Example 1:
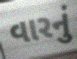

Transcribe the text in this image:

વારનું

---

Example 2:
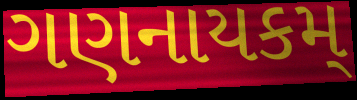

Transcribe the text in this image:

ગણનાયકમ્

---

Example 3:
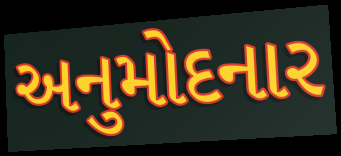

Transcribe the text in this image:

અનુમોદનાર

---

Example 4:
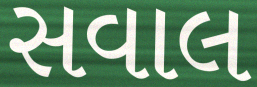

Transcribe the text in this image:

સવાલ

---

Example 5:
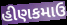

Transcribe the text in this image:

હીણકમાઉ